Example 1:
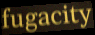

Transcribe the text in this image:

fugacity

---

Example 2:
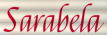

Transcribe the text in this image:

Sarabela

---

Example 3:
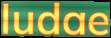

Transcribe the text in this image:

Iudae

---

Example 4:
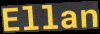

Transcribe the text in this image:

Ellan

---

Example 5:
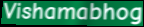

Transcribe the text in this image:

Vishamabhog